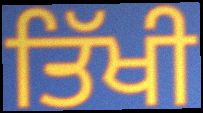
ਤਿੱਖੀ